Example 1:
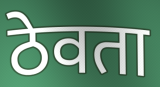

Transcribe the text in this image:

ठेवता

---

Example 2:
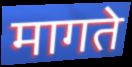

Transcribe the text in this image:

मागते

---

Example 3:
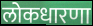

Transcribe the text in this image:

लोकधारणा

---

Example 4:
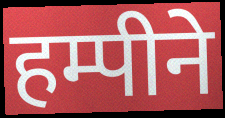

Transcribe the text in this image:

हम्पीने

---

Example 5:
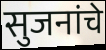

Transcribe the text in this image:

सुजनांचे